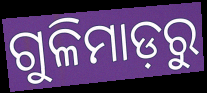
ଗୁଳିମାଡ଼ରୁ